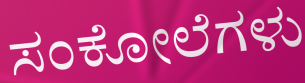
ಸಂಕೋಲೆಗಳು